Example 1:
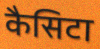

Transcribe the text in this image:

कैसिटा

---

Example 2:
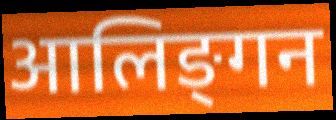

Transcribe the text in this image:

आलिङ्गन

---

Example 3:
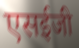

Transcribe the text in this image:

एसईजी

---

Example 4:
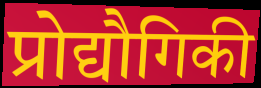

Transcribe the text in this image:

प्रोद्यौगिकी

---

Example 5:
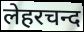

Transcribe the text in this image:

लेहरचन्द